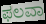
ಫಲವಾ